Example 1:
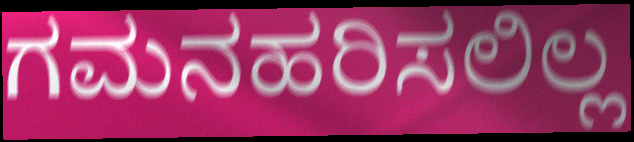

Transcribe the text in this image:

ಗಮನಹರಿಸಲಿಲ್ಲ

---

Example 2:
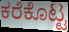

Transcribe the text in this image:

ಕರೆಕೊಟ್ಟ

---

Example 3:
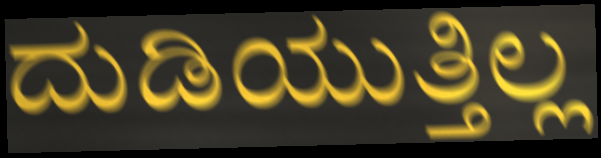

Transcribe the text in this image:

ದುಡಿಯುತ್ತಿಲ್ಲ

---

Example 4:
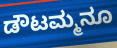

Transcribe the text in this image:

ಡೌಟಮ್ಮನೂ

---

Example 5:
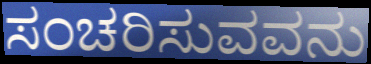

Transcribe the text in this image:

ಸಂಚರಿಸುವವನು